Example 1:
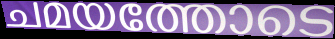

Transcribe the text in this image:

ചമയത്തോടെ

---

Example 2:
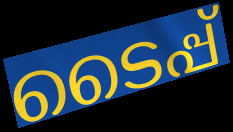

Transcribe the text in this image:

ടൈപ്പ്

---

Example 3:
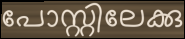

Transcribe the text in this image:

പോസ്റ്റിലേക്കു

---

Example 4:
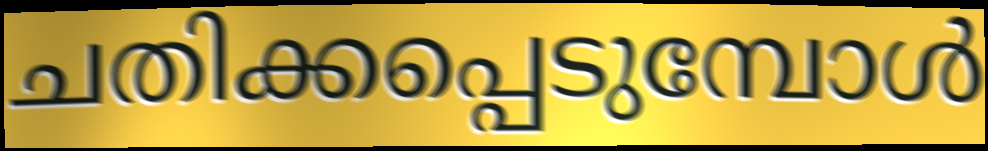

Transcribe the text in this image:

ചതിക്കപ്പെടുമ്പോൾ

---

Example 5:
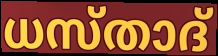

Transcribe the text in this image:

ധസ്താദ്